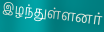
இழந்துள்ளனர்